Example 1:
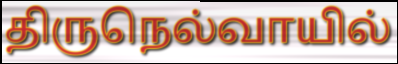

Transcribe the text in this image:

திருநெல்வாயில்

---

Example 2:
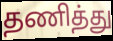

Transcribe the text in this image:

தணித்து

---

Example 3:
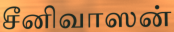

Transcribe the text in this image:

சீனிவாஸன்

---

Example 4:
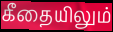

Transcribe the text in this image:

கீதையிலும்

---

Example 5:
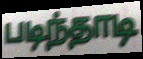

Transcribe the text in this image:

படிந்தாடி